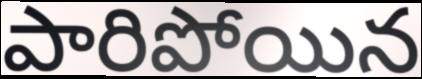
పారిపోయిన